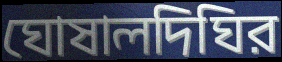
ঘোষালদিঘির